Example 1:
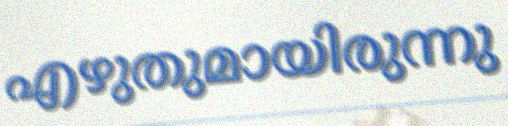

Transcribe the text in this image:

എഴുതുമായിരുന്നു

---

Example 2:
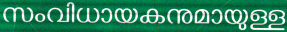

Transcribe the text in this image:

സംവിധായകനുമായുള്ള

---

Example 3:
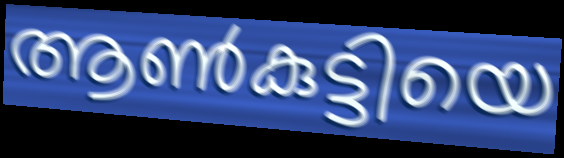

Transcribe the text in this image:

ആൺകുട്ടിയെ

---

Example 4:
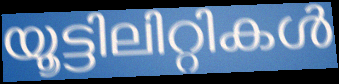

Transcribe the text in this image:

യൂട്ടിലിറ്റികൾ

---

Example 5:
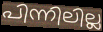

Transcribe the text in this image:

പിന്നിലില്ല